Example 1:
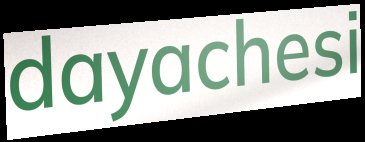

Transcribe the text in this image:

dayachesi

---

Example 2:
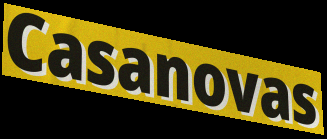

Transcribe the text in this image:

Casanovas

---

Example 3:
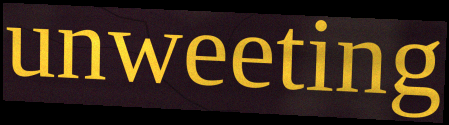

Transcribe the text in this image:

unweeting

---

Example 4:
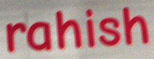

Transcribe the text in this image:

rahish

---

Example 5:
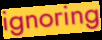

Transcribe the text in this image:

ignoring